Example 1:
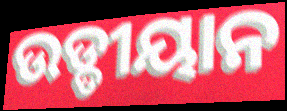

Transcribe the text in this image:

ଉଡ୍ଡୀୟାନ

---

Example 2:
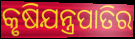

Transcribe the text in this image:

କୃଷିଯନ୍ତ୍ରପାତିର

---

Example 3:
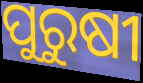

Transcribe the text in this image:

ପୁରୁଷୀ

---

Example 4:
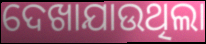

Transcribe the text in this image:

ଦେଖାଯାଉଥିଲା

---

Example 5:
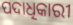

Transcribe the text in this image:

ପଦାଧିକାରୀ